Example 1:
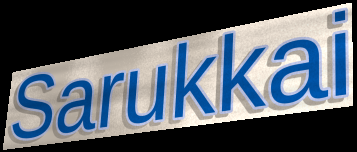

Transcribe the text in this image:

Sarukkai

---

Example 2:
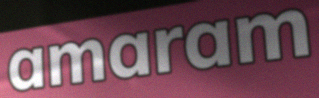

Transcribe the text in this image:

amaram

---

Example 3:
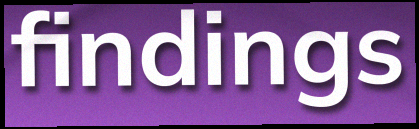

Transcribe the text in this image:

findings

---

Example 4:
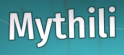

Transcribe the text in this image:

Mythili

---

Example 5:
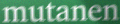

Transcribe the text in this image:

mutanen